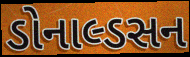
ડોનાલ્ડસન